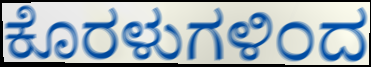
ಕೊರಳುಗಳಿಂದ